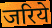
जरिये